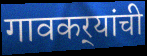
गावकर्यांची